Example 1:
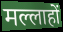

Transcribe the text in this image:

मल्लाहों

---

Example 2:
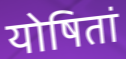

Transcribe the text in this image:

योषितां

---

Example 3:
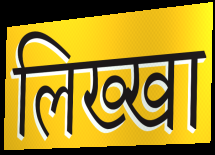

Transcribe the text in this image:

लिख्खा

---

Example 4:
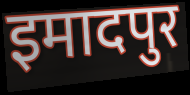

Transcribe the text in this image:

इमादपुर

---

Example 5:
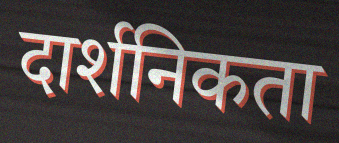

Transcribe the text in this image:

दार्शनिकता